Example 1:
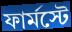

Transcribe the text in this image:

ফার্মস্টে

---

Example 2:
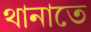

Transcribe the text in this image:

থানাতে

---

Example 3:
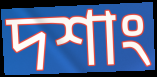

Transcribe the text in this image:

দশাং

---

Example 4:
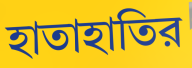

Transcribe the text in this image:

হাতাহাতির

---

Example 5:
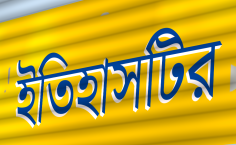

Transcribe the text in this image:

ইতিহাসটির